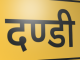
दण्डी